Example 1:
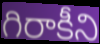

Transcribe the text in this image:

గిరాకీని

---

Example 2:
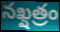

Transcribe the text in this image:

నఖ్షత్రం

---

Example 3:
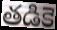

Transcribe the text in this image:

తడికె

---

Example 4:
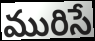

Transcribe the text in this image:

మురిసే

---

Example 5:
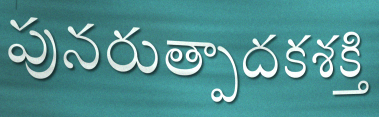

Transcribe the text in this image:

పునరుత్పాదకశక్తి